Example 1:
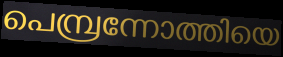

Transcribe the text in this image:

പെമ്പ്രന്നോത്തിയെ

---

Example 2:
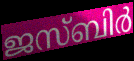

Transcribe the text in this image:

ജസ്ബിർ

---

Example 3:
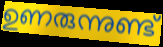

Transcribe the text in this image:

ഉണരുന്നുണ്ട്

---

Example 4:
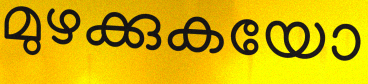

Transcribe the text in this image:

മുഴക്കുകയോ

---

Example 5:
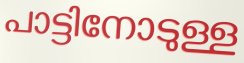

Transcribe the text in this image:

പാട്ടിനോടുള്ള